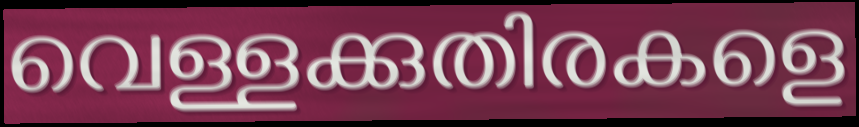
വെള്ളക്കുതിരകളെ